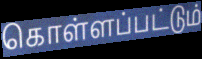
கொள்ளப்பட்டும்